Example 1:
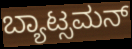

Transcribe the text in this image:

ಬ್ಯಾಟ್ಸಮನ್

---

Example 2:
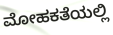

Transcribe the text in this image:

ಮೋಹಕತೆಯಲ್ಲಿ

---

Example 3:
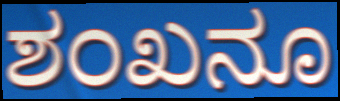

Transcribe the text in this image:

ಶಂಖನೂ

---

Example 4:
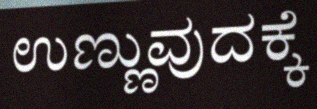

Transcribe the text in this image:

ಉಣ್ಣುವುದಕ್ಕೆ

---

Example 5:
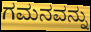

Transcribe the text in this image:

ಗಮನವನ್ನು